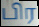
பிர